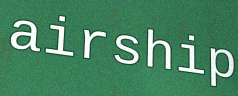
airship